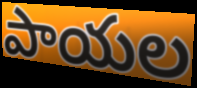
పాయల